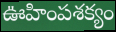
ఊహింపశక్యం